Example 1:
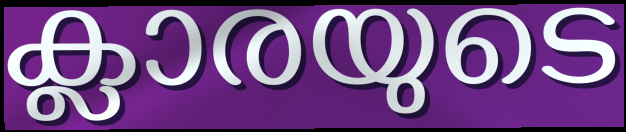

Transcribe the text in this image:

ക്ലാരയുടെ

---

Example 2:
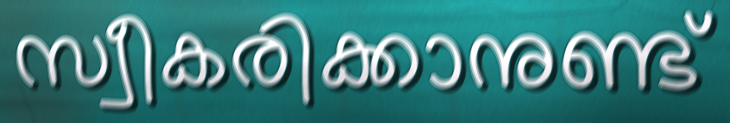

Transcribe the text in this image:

സ്വീകരിക്കാനുണ്ട്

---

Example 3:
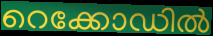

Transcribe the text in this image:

റെക്കോഡിൽ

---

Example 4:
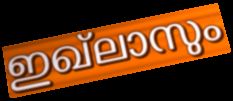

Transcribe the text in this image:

ഇഖ്‌ലാസും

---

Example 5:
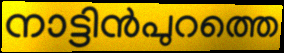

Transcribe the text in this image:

നാട്ടിൻപുറത്തെ